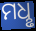
ମଧୢ